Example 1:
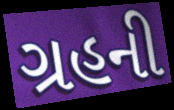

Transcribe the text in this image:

ગ્રહની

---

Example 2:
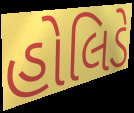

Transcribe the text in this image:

હોલિડે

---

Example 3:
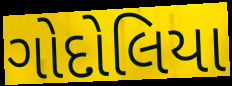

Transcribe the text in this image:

ગોદોલિયા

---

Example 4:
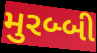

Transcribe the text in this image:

મુરબ્બી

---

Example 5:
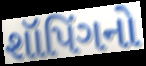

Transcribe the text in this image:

શૉપિંગનો